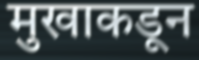
मुखाकडून